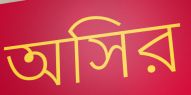
অসির